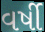
વર્ષી